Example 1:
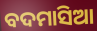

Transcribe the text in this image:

ବଦମାସିଆ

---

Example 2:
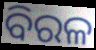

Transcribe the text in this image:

ବିରଳ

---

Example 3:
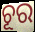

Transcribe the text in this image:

ଚୂର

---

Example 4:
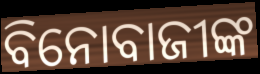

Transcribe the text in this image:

ବିନୋବାଜୀଙ୍କ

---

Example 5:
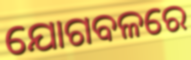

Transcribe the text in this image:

ଯୋଗବଳରେ